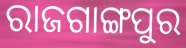
ରାଜଗାଙ୍ଗପୁର